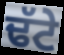
ਢੱਟੇ